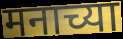
मनाच्या